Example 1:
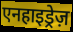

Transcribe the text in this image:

एनहाइड्रेज़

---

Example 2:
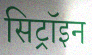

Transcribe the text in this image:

सिट्रॉइन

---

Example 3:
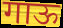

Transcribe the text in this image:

गाऊ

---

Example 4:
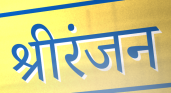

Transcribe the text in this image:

श्रीरंजन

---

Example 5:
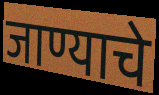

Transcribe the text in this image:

जाण्याचे